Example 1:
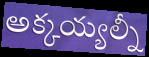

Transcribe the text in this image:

అక్కయ్యల్నీ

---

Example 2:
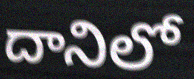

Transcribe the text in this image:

దానిలో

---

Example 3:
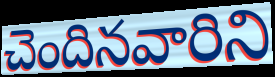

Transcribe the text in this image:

చెందినవారిని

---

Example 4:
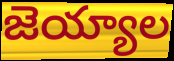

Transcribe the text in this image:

జెయ్యాల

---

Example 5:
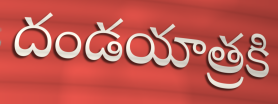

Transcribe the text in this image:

దండయాత్రకి